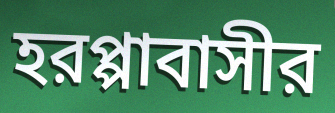
হরপ্পাবাসীর